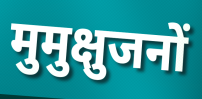
मुमुक्षुजनों